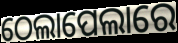
ଠେଲାପେଲାରେ